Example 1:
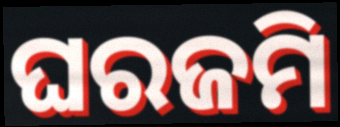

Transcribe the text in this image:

ଘରଜମି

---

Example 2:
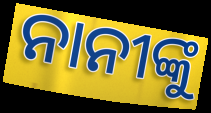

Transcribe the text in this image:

ନାନୀଙ୍କୁ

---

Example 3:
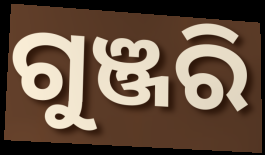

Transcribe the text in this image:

ଗୁଞ୍ଜରି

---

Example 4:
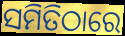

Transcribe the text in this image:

ସମିତିଠାରେ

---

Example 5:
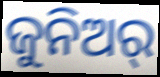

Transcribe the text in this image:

ଜୁନିଅର୍